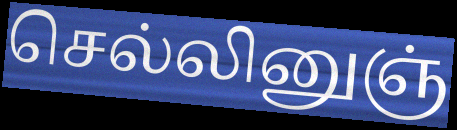
செல்லினுஞ்